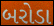
બરોડા